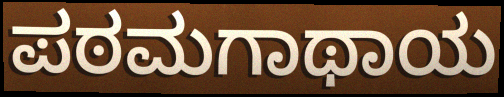
ಪಠಮಗಾಥಾಯ